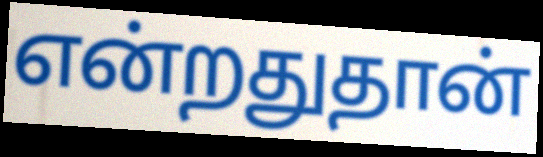
என்றதுதான்